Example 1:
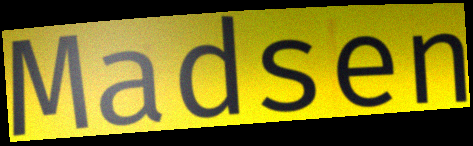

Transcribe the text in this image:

Madsen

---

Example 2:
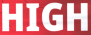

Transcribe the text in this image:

HIGH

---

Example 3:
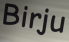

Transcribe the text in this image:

Birju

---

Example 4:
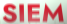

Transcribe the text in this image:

SIEM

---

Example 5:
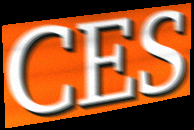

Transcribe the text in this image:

CES